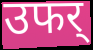
उफर्